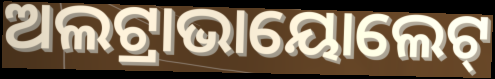
ଅଲଟ୍ରାଭାୟୋଲେଟ୍